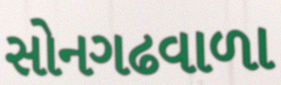
સોનગઢવાળા